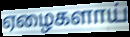
ஏழைகளாய்